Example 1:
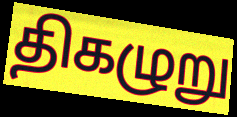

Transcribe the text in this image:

திகழுறு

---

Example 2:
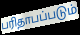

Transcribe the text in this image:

பரிதாபப்படும்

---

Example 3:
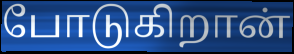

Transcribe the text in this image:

போடுகிறான்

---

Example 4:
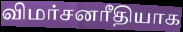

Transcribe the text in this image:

விமர்சனரீதியாக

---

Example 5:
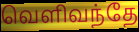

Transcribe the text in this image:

வெளிவந்தே